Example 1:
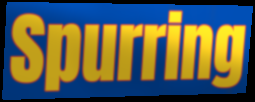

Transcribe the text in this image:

Spurring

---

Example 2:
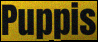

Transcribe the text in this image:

Puppis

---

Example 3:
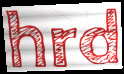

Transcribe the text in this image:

hrd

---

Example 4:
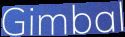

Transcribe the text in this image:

Gimbal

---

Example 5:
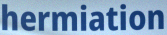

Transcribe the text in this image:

hermiation